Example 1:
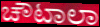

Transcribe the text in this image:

ಚೌಟಾಲಾ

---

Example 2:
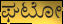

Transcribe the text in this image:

ಘಟೋ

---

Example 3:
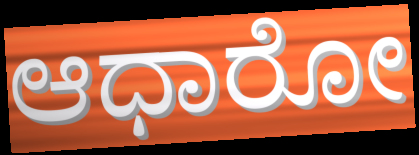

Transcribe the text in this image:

ಆಧಾರೋ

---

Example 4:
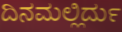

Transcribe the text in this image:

ದಿನಮಲ್ಲಿರ್ದು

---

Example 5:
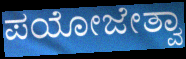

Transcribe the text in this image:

ಪಯೋಜೇತ್ವಾ